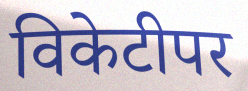
विकेटीपर